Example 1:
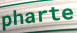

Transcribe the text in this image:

pharte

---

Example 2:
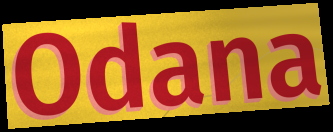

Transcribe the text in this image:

Odana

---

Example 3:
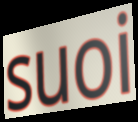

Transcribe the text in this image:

suoi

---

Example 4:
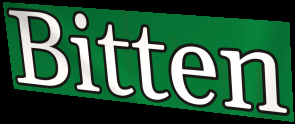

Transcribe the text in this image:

Bitten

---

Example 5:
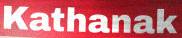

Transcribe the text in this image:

Kathanak